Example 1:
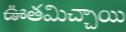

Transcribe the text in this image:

ఊతమిచ్చాయి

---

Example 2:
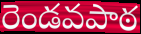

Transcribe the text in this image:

రెండవపాఠ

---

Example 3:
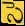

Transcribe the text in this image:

సె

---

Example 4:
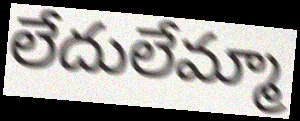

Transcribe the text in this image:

లేదులేమ్మా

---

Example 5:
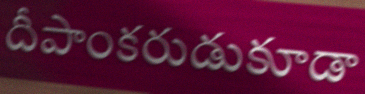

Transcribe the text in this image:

దీపాంకరుడుకూడా